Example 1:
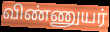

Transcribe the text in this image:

விண்ணுயர்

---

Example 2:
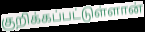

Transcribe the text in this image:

குறிக்கப்பட்டுள்ளான்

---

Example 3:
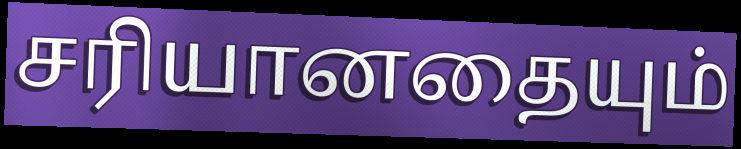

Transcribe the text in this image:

சரியானதையும்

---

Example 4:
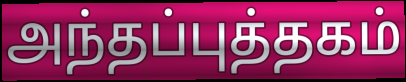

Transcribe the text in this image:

அந்தப்புத்தகம்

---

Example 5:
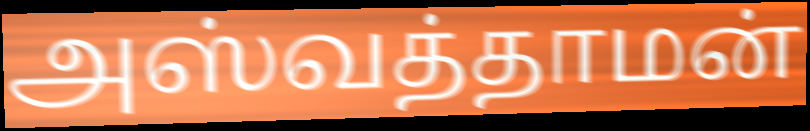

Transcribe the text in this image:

அஸ்வத்தாமன்